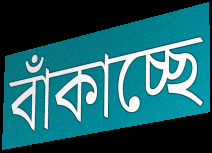
বাঁকাচ্ছে